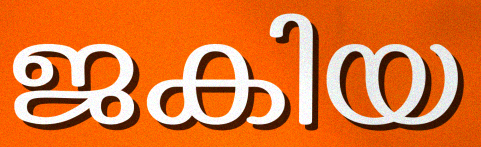
ജകിയ